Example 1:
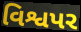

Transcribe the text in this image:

વિશ્વપર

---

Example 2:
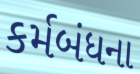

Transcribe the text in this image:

કર્મબંધના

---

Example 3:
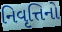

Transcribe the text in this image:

નિવૃત્તિનો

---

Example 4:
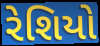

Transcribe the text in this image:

રેશિયો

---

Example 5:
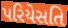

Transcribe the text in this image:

પરિયેસતિ